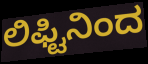
ಲಿಫ್ಟಿನಿಂದ